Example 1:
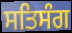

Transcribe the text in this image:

ਸਤਿਸੰਗ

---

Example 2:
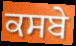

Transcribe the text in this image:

ਕਸਬੇ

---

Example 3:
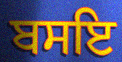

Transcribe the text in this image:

ਬਸਇ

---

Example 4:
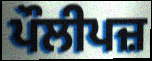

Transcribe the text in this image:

ਪੌਲੀਪਜ਼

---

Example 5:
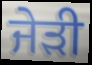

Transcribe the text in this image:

ਜੇੜੀ